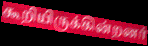
கூறியிருக்கின்றனர்